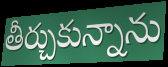
తీర్చుకున్నాను